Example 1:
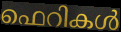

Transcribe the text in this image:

ഫെറികൾ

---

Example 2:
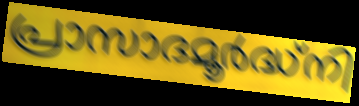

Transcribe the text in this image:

പ്രാസാദമൂർദ്ധ്നി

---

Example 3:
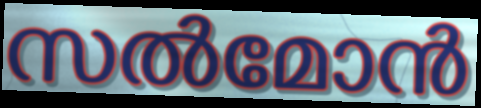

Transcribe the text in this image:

സൽമോൻ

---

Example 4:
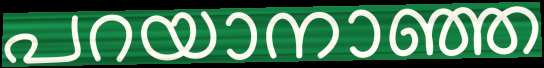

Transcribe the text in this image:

പറയാനാഞ്ഞ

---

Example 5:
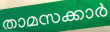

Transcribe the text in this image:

താമസക്കാർ